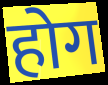
होग